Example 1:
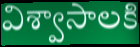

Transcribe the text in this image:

విశ్వాసాలకి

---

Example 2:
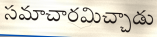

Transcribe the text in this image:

సమాచారమిచ్చాడు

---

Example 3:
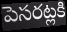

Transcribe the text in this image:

పెసరట్లకి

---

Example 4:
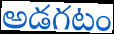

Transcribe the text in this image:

అడగటం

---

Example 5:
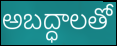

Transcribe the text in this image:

అబద్ధాలతో